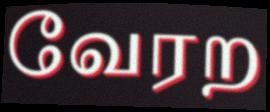
வேரற